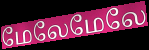
மேலேமேலே